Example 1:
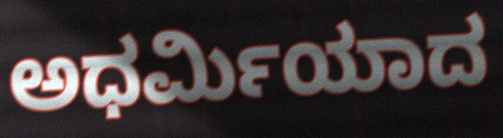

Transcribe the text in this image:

ಅಧರ್ಮಿಯಾದ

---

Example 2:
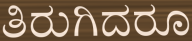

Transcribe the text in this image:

ತಿರುಗಿದರೂ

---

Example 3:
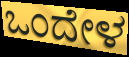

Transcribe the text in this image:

ಒಂದೇಳ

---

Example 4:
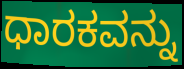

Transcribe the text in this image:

ಧಾರಕವನ್ನು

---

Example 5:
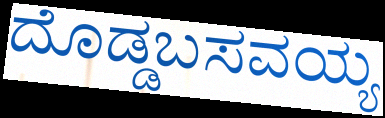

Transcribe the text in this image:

ದೊಡ್ಡಬಸವಯ್ಯ